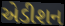
એડીશન